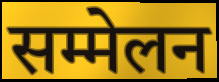
सम्मेलन